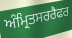
ਅੰਮ੍ਰਿਤਸਰਰੈਫਰ